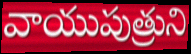
వాయుపుత్రుని